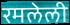
रमलेली